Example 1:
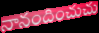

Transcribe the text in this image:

నానందించుచు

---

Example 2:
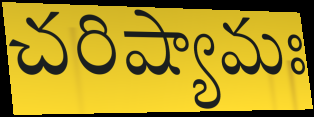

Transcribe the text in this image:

చరిష్యామః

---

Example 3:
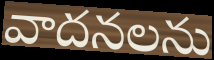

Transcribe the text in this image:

వాదనలను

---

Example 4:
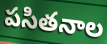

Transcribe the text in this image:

పసితనాల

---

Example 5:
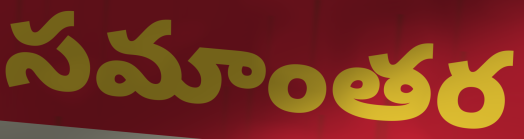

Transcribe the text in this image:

సమాంతర